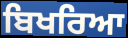
ਬਿਖਰਿਆ